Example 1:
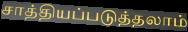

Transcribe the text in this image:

சாத்தியப்படுத்தலாம்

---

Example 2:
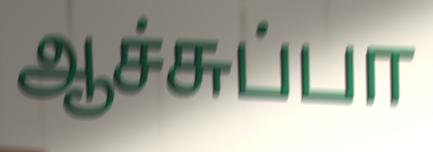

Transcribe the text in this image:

ஆச்சுப்பா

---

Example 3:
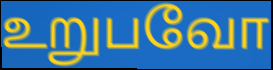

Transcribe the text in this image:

உறுபவோ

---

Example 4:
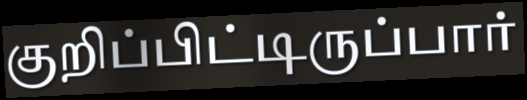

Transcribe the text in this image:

குறிப்பிட்டிருப்பார்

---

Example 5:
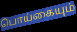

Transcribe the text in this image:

பொய்கையும்